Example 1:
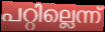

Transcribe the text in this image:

പറ്റില്ലെന്ന്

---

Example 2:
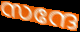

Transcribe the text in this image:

സന്ദേ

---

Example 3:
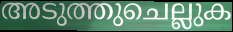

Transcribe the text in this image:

അടുത്തുചെല്ലുക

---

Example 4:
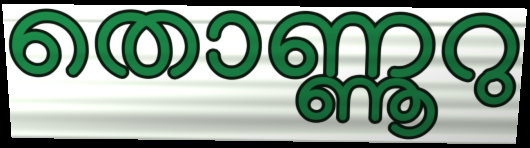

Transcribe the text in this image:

തൊണ്ണൂറു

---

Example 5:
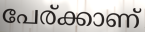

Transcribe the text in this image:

പേര്ക്കാണ്